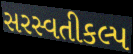
સરસ્વતીકલ્પ